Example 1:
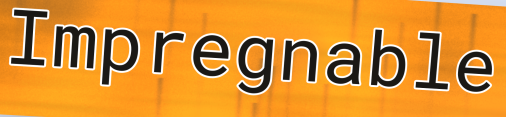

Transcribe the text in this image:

Impregnable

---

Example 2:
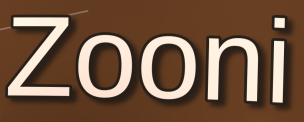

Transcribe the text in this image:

Zooni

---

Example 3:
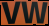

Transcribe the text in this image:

vw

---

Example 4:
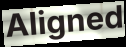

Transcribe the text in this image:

Aligned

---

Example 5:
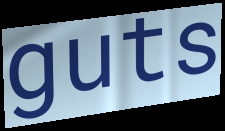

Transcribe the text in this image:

guts